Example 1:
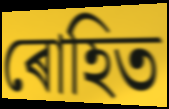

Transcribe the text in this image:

ৰোহিত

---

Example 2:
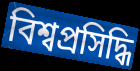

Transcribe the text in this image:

বিশ্বপ্ৰসিদ্ধি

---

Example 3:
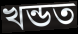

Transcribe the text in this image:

খন্ডত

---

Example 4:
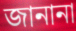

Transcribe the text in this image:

জানানা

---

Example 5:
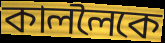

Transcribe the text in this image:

কাললৈকে